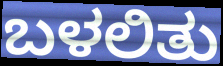
ಬಳಲಿತು